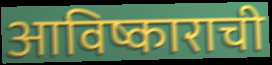
आविष्काराची